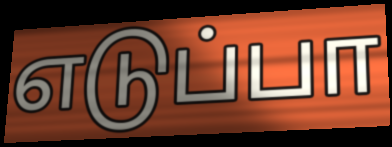
எடுப்பா